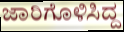
ಜಾರಿಗೊಳಿಸಿದ್ದ